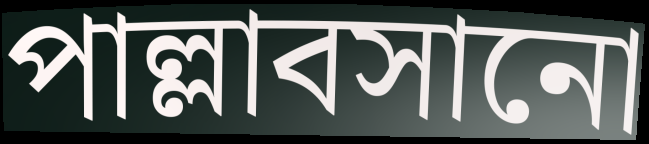
পাল্লাবসানো